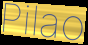
Pilao